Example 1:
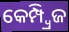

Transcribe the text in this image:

କେମ୍ପ୍ୱ୍ରିଜ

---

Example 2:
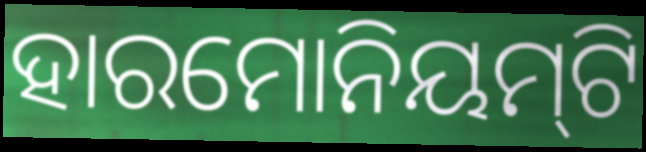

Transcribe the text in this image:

ହାରମୋନିୟମ୍‍ଟି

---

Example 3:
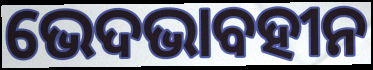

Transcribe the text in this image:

ଭେଦଭାବହୀନ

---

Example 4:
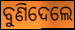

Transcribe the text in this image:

ବୁଣିଦେଲେ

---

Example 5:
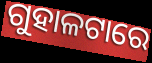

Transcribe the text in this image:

ଗୁହାଳଟାରେ